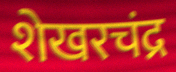
शेखरचंद्र